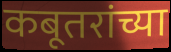
कबूतरांच्या